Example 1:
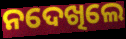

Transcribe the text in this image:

ନଦେଖିଲେ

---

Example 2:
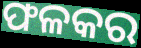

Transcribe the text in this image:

ଫଳକର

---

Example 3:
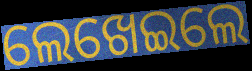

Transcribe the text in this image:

ଲେଖେଇଲେ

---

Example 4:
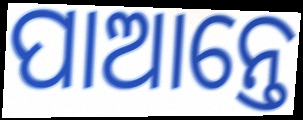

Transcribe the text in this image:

ପାଆନ୍ତେ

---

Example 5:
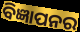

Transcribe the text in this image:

ବିଜ୍ଞାପନର